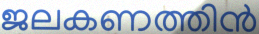
ജലകണത്തിൻ